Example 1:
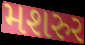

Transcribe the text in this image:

મશરુર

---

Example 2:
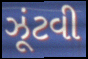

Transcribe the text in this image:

ઝૂંટવી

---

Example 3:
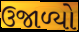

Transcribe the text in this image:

ઉજાળ્યો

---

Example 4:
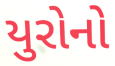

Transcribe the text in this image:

યુરોનો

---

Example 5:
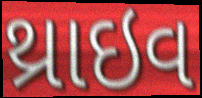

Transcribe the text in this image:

થ્રાઇવ